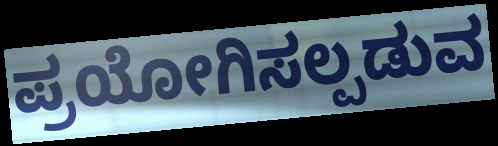
ಪ್ರಯೋಗಿಸಲ್ಪಡುವ